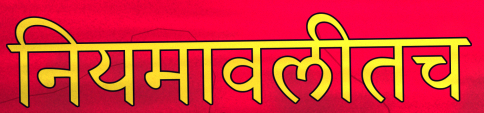
नियमावलीतच